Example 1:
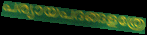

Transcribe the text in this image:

പര്യായപദങ്ങളത്രേ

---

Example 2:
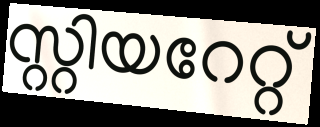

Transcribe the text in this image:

സ്റ്റിയറേറ്റ്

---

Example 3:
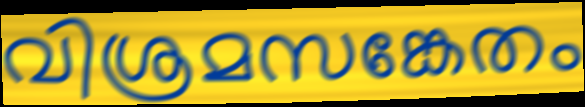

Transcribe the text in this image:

വിശ്രമസങ്കേതം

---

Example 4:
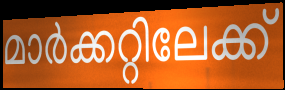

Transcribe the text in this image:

മാർക്കറ്റിലേക്ക്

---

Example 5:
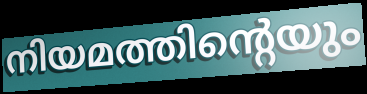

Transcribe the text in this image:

നിയമത്തിന്റെയും